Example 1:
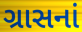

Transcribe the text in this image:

ગ્રાસનાં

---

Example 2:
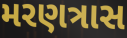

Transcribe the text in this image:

મરણત્રાસ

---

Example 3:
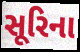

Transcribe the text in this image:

સૂરિના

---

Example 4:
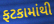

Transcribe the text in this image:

ફટકામાંથી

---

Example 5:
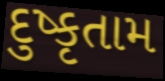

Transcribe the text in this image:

દુષ્કૃતામ